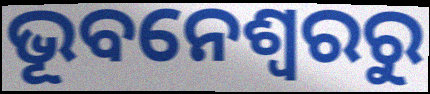
ଭୂବନେଶ୍ୱରରୁ